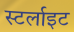
स्टर्लाइट